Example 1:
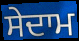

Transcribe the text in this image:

ਸੇਦਾਮ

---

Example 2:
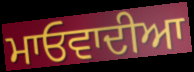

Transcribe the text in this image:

ਮਾਓਵਾਦੀਆ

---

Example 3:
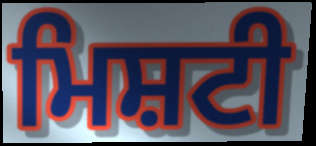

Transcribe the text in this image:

ਮਿਸ਼ਟੀ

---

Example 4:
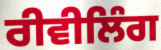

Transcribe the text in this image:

ਰੀਵੀਲਿੰਗ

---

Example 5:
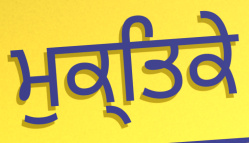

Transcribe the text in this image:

ਮੁਕ੍ਤਿਕੇ